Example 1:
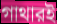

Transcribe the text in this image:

গাথারই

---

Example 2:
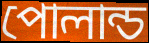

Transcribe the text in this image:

পোলান্ড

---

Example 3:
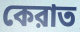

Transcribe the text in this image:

কেরাত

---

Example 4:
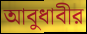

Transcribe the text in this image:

আবুধাবীর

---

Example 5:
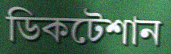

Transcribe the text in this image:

ডিকটেশান